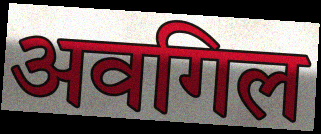
अवगिल